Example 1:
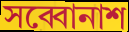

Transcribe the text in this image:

সব্বোনাশ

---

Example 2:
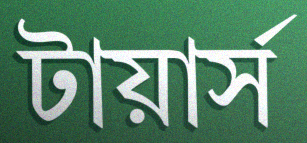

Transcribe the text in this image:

টায়ার্স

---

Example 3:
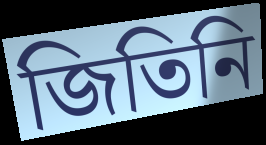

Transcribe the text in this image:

জিতিনি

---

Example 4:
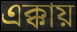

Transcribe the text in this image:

এক্কায়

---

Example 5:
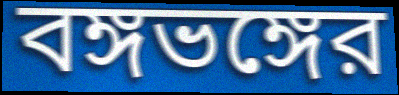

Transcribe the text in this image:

বঙ্গভঙ্গের